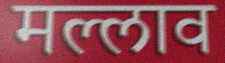
मल्लाव